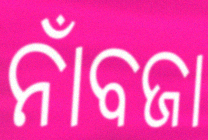
ନାଁବଜା